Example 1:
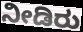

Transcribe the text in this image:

ನೀಡಿರು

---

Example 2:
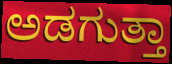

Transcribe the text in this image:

ಅಡಗುತ್ತಾ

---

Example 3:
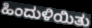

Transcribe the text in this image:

ಹಿಂದುಳಿಯಿತು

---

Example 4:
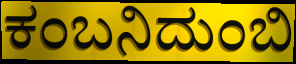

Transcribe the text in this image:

ಕಂಬನಿದುಂಬಿ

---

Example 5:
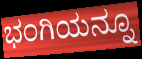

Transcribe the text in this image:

ಭಂಗಿಯನ್ನೂ